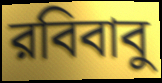
রবিবাবু